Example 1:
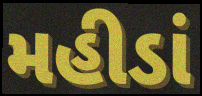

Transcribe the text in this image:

મહીડાં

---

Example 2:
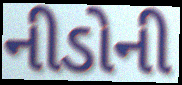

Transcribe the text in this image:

નીડોની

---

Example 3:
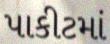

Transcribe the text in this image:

પાકીટમાં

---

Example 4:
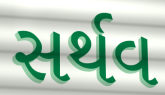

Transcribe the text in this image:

સર્થવ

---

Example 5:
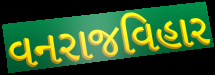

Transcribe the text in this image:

વનરાજવિહાર